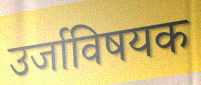
उर्जाविषयक